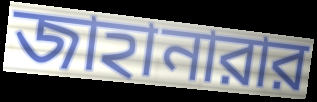
জাহানারার